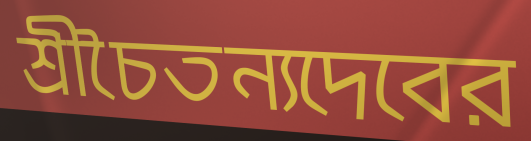
শ্রীচৈতন্যদেবের